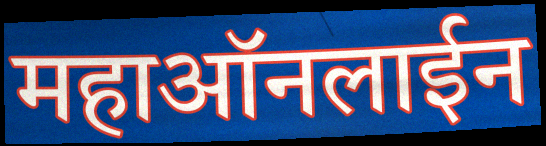
महाऑनलाईन